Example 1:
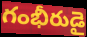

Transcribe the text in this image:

గంభీరుడై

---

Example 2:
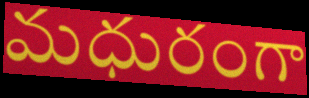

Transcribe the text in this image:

మధురంగా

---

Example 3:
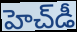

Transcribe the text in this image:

హెచ్‌డీ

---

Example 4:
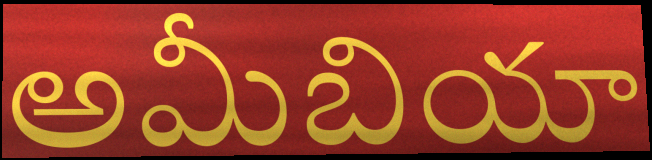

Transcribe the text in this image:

అమీబియా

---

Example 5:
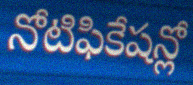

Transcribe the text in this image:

నోటిఫికేషన్లో